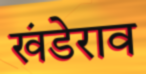
खंडेराव